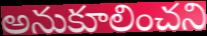
అనుకూలించని